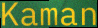
Kaman